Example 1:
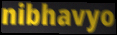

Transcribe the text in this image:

nibhavyo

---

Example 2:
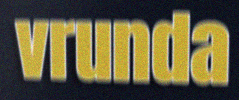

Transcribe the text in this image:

vrunda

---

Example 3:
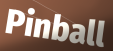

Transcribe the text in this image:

Pinball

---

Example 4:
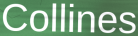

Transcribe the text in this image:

Collines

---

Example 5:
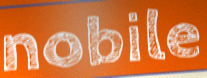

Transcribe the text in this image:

nobile